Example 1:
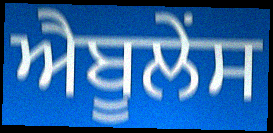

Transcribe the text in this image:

ਐਬੂਲੇਂਸ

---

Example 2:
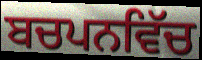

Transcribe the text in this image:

ਬਚਪਨਵਿੱਚ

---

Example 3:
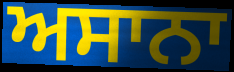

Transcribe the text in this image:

ਅਸਾਨਾ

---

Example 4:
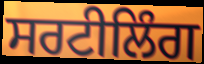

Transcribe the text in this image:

ਸਰਟੀਲਿੰਗ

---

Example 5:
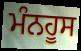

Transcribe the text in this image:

ਮੰਨਹੂਸ